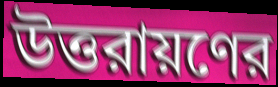
উত্তরায়ণের